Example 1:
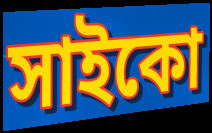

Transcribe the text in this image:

সাইকো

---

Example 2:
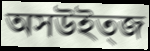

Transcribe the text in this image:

অসউইত্জ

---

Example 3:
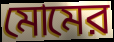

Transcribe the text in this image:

মোমের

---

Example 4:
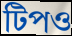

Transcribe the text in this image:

টিপও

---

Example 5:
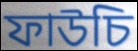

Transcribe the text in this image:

ফাউচি